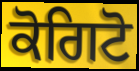
ਕੋਗਿਟੋ